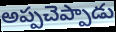
అప్పచెప్పాడు